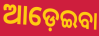
ଆଡ଼େଇବା